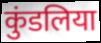
कुंडलिया